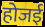
होजई